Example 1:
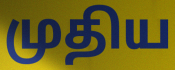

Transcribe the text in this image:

முதிய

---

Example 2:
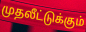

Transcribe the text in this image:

முதலீட்டுக்கும்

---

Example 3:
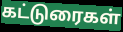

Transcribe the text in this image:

கட்டுரைகள்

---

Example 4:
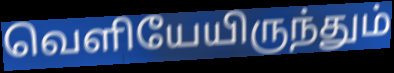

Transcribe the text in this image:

வெளியேயிருந்தும்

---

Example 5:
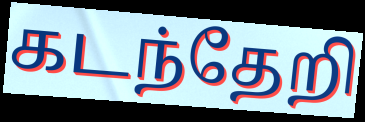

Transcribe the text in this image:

கடந்தேறி